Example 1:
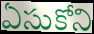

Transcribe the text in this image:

ఏసుకోని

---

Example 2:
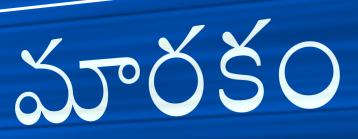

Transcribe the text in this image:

మారకం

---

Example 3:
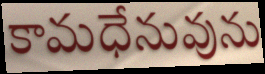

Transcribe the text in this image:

కామధేనువును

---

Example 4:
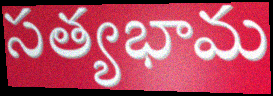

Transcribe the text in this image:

సత్యభామ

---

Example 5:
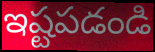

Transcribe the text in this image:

ఇష్టపడండి